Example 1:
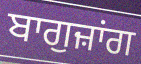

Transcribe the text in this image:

ਬਾਗੁਜ਼ਾਂਗ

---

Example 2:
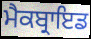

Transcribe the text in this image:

ਮੈਕਬ੍ਰਾਇਡ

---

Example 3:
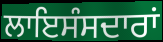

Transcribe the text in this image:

ਲਾਇਸੰਸਦਾਰਾਂ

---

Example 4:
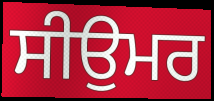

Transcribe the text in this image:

ਸੀਉਮਰ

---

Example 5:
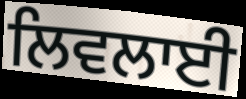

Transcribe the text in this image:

ਲਿਵਲਾਈ